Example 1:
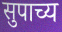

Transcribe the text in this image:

सुपाच्य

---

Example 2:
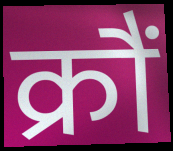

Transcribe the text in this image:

क्रौं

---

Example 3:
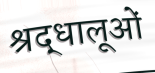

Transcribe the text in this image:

श्रद्धालूओं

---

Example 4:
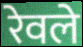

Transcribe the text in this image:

रेवले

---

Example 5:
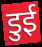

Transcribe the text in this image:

डुई